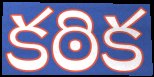
కఠిక